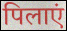
पिलाएं